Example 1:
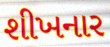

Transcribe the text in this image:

શીખનાર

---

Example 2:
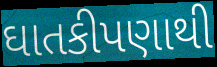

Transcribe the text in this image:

ઘાતકીપણાથી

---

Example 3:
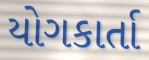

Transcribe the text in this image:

યોગકાર્તા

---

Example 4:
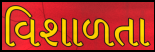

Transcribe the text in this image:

વિશાળતા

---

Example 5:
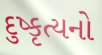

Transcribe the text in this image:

દુષ્કૃત્યનો